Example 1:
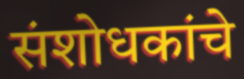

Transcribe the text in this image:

संशोधकांचे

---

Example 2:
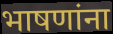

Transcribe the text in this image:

भाषणांना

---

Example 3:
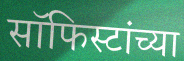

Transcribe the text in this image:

सॉफिस्टांच्या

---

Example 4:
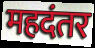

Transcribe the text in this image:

महदंतर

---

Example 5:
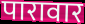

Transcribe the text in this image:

पारावार